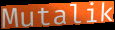
Mutalik